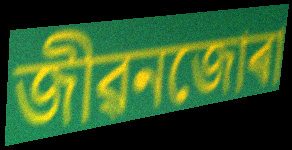
জীৱনজোৰা